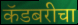
कॅडबरीचा